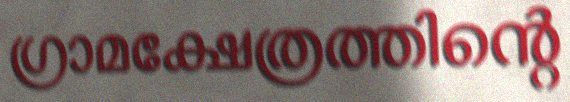
ഗ്രാമക്ഷേത്രത്തിന്റെ